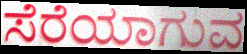
ಸೆರೆಯಾಗುವ